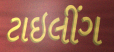
ટાઇલીંગ